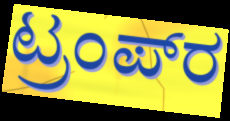
ಟ್ರಂಪ್‍ರ